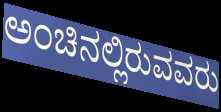
ಅಂಚಿನಲ್ಲಿರುವವರು